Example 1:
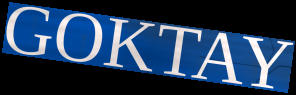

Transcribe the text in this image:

GOKTAY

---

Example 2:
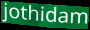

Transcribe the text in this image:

jothidam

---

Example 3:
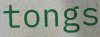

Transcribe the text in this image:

tongs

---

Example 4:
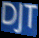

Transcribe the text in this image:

DJT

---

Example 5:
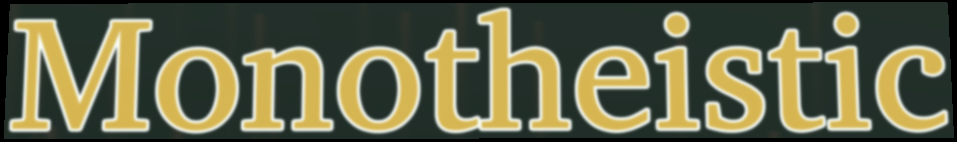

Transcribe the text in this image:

Monotheistic